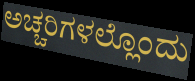
ಅಚ್ಚರಿಗಳಲ್ಲೊಂದು